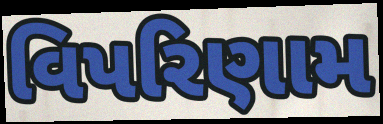
વિપરિણામ